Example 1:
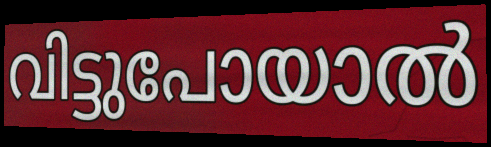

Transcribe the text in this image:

വിട്ടുപോയാൽ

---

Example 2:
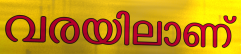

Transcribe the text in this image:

വരയിലാണ്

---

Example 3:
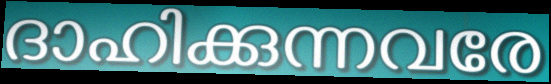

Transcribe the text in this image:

ദാഹിക്കുന്നവരേ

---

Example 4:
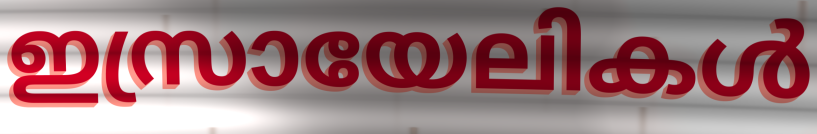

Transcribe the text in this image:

ഇസ്രായേലികൾ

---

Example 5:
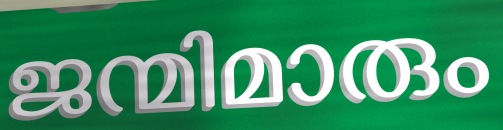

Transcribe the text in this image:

ജന്മിമാരും